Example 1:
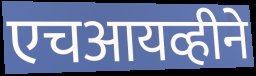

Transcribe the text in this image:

एचआयव्हीने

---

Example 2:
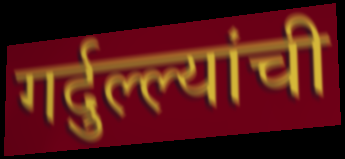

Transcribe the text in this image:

गर्दुल्ल्यांची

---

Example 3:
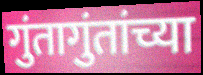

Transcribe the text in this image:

गुंतागुंतांच्या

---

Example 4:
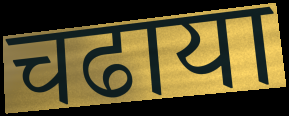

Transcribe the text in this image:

चढाया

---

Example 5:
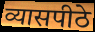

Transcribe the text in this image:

व्यासपीठे